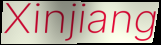
Xinjiang